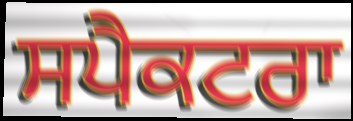
ਸਪੈਕਟਰਾ